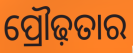
ପ୍ରୌଢ଼ତାର